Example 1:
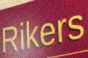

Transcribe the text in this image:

Rikers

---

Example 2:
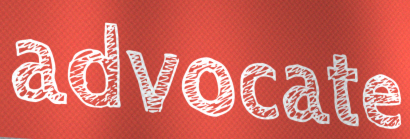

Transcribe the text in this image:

advocate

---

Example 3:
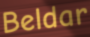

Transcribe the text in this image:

Beldar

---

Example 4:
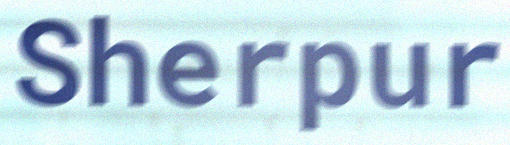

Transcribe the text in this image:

Sherpur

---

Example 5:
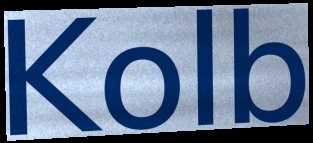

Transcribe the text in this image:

Kolb